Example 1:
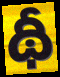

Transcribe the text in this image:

థీ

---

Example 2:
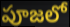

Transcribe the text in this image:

పూజలో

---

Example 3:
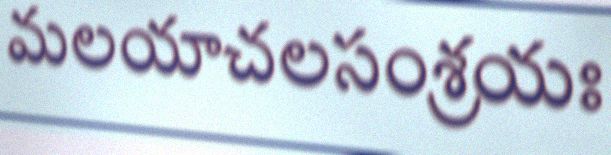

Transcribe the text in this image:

మలయాచలసంశ్రయః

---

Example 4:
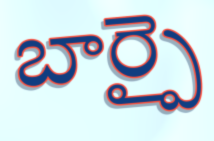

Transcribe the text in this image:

బార్పై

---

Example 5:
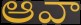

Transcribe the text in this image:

ఆవా